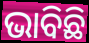
ଭାବିଛି